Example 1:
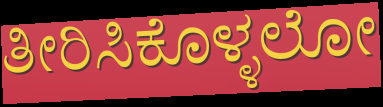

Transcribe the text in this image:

ತೀರಿಸಿಕೊಳ್ಳಲೋ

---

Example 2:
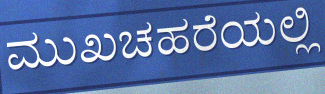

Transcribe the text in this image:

ಮುಖಚಹರೆಯಲ್ಲಿ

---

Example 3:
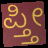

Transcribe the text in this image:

ಪ್ತ್ತೀ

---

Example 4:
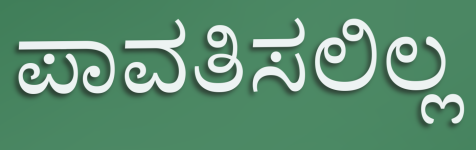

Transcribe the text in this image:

ಪಾವತಿಸಲಿಲ್ಲ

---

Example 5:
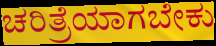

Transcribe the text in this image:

ಚರಿತ್ರೆಯಾಗಬೇಕು